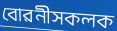
বোৱনীসকলক